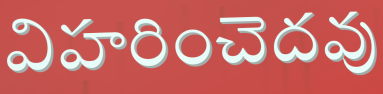
విహరించెదవు